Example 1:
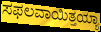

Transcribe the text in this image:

ಸಫಲವಾಯಿತ್ತಯ್ಯಾ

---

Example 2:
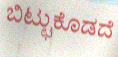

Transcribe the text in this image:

ಬಿಟ್ಟುಕೊಡದೆ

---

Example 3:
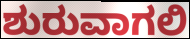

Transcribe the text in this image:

ಶುರುವಾಗಲಿ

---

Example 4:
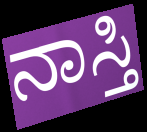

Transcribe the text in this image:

ನಾಸ್ತಿ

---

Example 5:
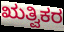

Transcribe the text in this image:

ಋತ್ವಿಕರ